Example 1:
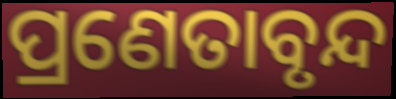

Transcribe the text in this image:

ପ୍ରଣେତାବୃନ୍ଦ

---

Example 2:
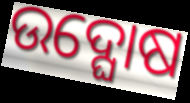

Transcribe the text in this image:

ଉଦ୍ଘୋଷ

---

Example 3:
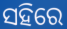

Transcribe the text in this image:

ସହିରେ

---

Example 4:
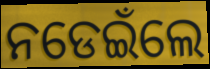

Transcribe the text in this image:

ନଡେଇଁଲେ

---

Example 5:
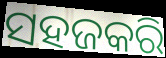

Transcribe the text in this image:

ସହଜକରି